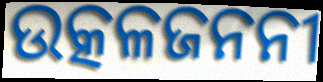
ଉତ୍କଳଜନନୀ